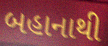
બહાનાથી